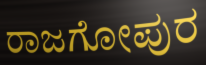
ರಾಜಗೋಪುರ